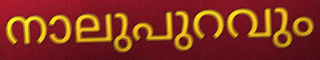
നാലുപുറവും